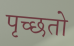
पृच्छतो